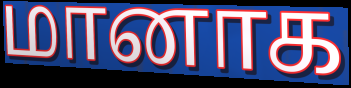
மானாக